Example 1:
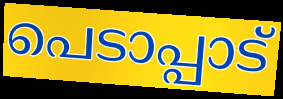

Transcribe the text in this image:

പെടാപ്പാട്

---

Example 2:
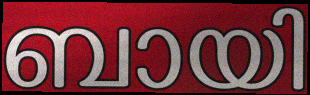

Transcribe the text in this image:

ബായി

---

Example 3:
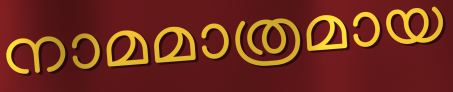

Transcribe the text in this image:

നാമമാത്രമായ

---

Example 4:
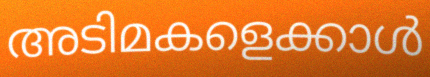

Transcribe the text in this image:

അടിമകളെക്കാൾ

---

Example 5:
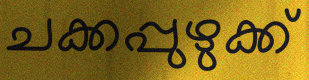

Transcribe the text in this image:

ചക്കപ്പുഴുക്ക്